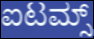
ಐಟಮ್ಸ್